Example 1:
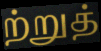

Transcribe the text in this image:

ற்றுத்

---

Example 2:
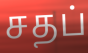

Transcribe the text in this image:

சதப்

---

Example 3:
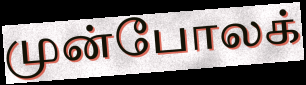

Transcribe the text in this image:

முன்போலக்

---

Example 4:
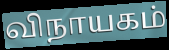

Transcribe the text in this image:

விநாயகம்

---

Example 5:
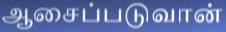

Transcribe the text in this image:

ஆசைப்படுவான்